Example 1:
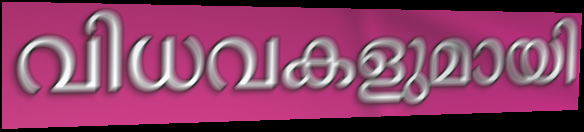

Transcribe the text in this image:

വിധവകളുമായി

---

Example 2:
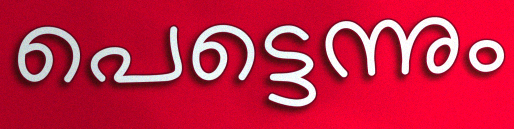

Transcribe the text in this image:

പെട്ടെന്നും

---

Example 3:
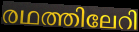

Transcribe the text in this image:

രഥത്തിലേറി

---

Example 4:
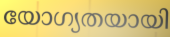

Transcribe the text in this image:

യോഗ്യതയായി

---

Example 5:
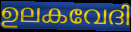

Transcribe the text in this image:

ഉലകവേദി